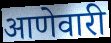
आणेवारी